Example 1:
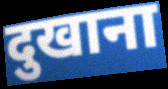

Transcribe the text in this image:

दुखाना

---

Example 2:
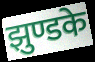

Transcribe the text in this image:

झुण्डके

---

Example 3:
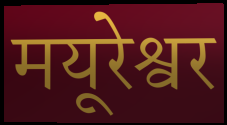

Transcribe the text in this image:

मयूरेश्वर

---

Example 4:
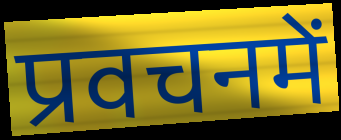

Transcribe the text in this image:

प्रवचनमें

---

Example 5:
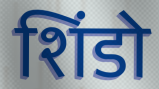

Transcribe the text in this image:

शिंडो